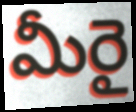
మీరై